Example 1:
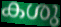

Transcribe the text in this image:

കശു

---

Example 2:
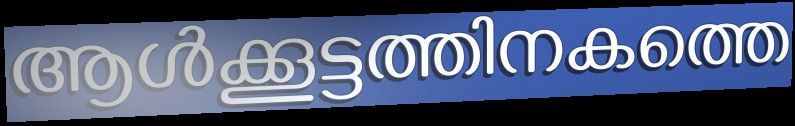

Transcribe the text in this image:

ആൾക്കൂട്ടത്തിനകത്തെ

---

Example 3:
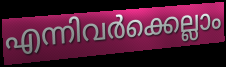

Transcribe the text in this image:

എന്നിവർക്കെല്ലാം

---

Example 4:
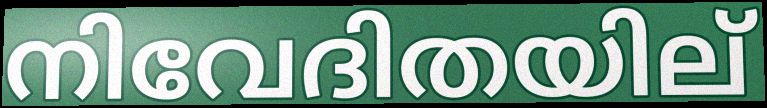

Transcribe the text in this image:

നിവേദിതയില്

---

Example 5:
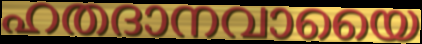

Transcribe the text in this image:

ഹതദാനവായൈ